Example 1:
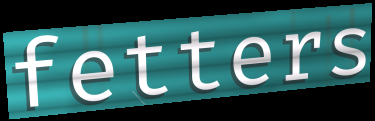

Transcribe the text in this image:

fetters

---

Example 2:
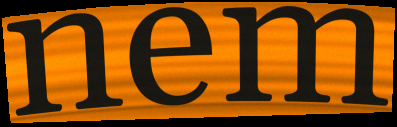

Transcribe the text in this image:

nem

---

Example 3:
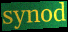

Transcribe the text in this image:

synod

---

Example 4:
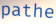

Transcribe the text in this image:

pathe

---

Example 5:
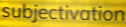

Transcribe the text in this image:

subjectivation